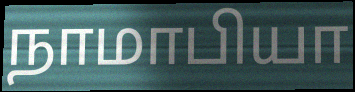
நாமாபியா